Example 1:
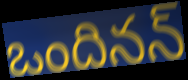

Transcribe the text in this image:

ఒందినన్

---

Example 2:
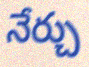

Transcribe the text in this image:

నేర్చు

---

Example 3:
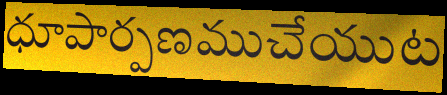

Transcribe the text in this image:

ధూపార్పణముచేయుట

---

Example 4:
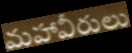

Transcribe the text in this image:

మహావీరులు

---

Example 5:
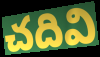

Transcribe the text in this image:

చదివి